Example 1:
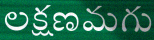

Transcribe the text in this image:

లక్షణమగు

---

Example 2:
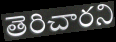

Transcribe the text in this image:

తెరిచారని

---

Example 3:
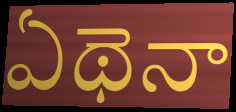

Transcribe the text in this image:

ఏథెనా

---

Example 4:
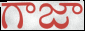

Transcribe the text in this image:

గాజా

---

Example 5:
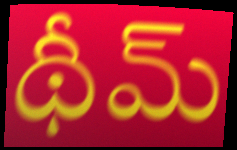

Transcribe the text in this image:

థీమ్